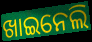
ଖାଇନେଲି